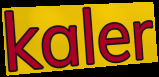
kaler